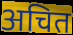
अचित